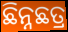
ଛିନ୍ନଛତ୍ର